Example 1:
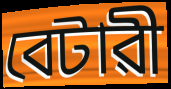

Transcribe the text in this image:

বেটাৱী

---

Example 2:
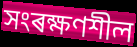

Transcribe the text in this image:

সংৰক্ষণশীল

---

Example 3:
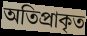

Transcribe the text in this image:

অতিপ্ৰাকৃত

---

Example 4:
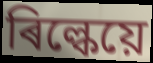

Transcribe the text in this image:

ৰিল্কেয়ে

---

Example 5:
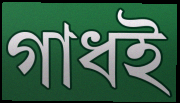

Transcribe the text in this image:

গাধই